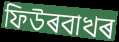
ফিউৰবাখৰ